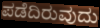
ಪಡೆದಿರುವುದು